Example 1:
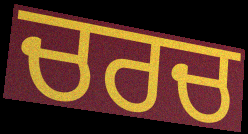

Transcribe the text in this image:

ਚਰਚ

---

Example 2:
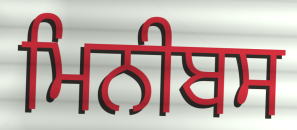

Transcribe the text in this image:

ਮਿਨੀਬਸ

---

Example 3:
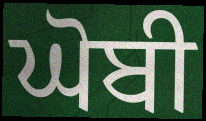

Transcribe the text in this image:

ਘੋਬੀ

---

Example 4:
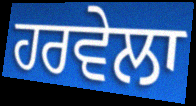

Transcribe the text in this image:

ਹਰਵੇਲਾ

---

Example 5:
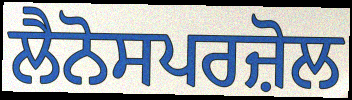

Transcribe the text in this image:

ਲੈਨੋਸਪਰਜ਼ੋਲ